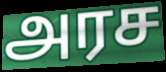
அரச